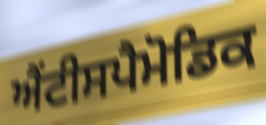
ਐਂਟੀਸਪੈਮੋਡਿਕ